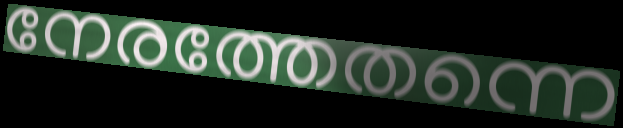
നേരത്തേതന്നെ